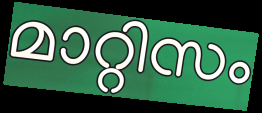
മാറ്റിസം